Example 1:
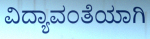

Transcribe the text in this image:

ವಿದ್ಯಾವಂತೆಯಾಗಿ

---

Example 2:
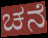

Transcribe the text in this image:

ಚನೆ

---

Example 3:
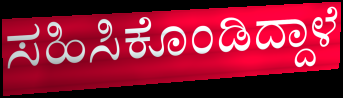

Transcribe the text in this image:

ಸಹಿಸಿಕೊಂಡಿದ್ದಾಳೆ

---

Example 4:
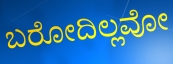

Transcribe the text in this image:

ಬರೋದಿಲ್ಲವೋ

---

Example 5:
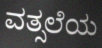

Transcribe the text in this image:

ವತ್ಸಲೆಯ